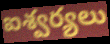
ఐశ్వర్యలు